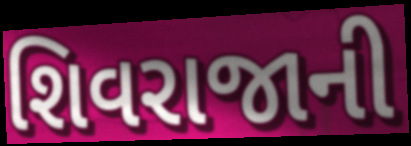
શિવરાજાની